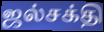
ஜல்சக்தி